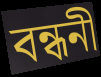
বন্ধনী